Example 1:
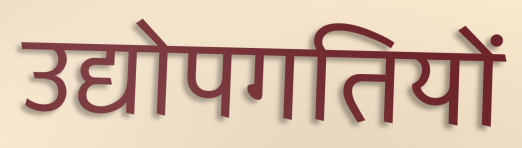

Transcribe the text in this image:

उद्योपगतियों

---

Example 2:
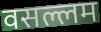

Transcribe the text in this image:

वसल्लम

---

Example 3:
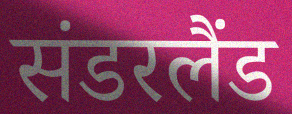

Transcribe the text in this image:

संडरलैंड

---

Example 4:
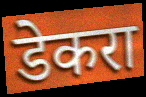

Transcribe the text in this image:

डेकरा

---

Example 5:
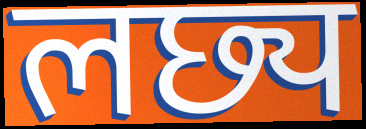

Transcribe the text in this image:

लछ्य